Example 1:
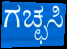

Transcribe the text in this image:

ಗಚ್ಛಸಿ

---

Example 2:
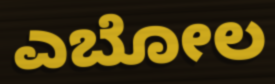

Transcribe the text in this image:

ಎಬೋಲ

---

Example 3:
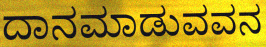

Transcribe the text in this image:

ದಾನಮಾಡುವವನ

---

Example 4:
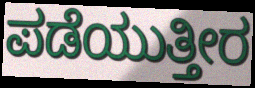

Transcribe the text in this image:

ಪಡೆಯುತ್ತೀರ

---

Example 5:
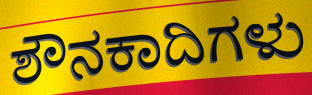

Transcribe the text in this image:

ಶೌನಕಾದಿಗಳು